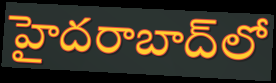
హైదరాబాద్‌లో